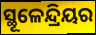
ସ୍ଥୂଳେନ୍ଦ୍ରିୟର